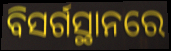
ବିସର୍ଗସ୍ଥାନରେ